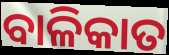
ବାଳିକାତ